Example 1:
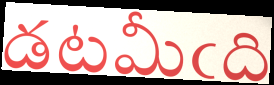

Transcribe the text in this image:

డటమీఁది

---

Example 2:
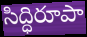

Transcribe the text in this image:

సిద్ధిరూపా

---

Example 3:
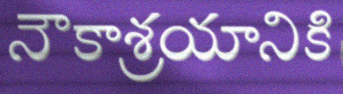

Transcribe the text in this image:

నౌకాశ్రయానికి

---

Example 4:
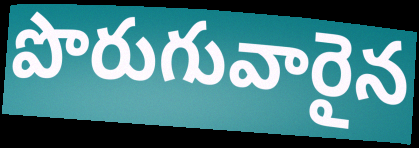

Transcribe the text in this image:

పొరుగువారైన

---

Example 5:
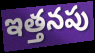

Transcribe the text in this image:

ఇత్తనపు